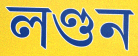
লণ্ডন